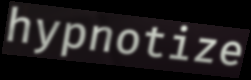
hypnotize